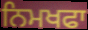
ਨਿਮਖਫਾ